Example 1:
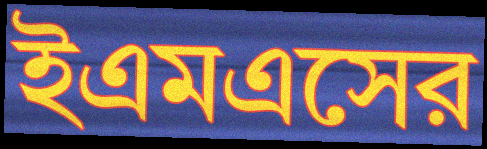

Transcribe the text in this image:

ইএমএসের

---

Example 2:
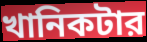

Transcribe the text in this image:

খানিকটার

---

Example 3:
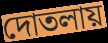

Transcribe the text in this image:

দোতলায়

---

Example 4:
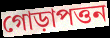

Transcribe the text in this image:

গোড়াপত্তন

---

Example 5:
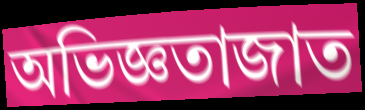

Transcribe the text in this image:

অভিজ্ঞতাজাত